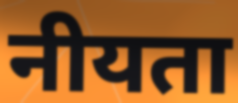
नीयता